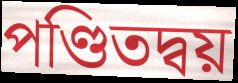
পণ্ডিতদ্বয়